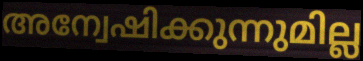
അന്വേഷിക്കുന്നുമില്ല